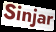
Sinjar